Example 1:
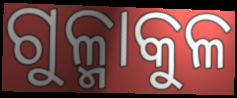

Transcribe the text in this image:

ଗୁଳ୍ମାକୁଳ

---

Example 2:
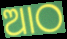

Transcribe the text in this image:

ଆଠ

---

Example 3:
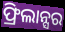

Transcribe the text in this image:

ଫ୍ରିଲାନ୍ସର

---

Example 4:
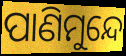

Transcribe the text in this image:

ପାଣିମୁନ୍ଦେ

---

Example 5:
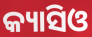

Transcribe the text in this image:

କ୍ୟାସିଓ